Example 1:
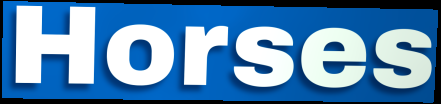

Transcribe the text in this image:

Horses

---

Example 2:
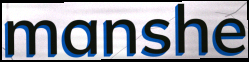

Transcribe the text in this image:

manshe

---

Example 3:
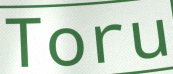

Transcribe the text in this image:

Toru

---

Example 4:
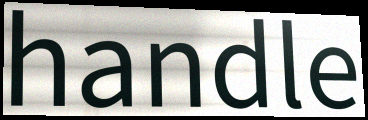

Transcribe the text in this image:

handle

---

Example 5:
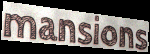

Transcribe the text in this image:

mansions